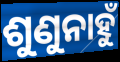
ଶୁଣୁନାହୁଁ